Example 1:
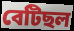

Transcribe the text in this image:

বেটিছল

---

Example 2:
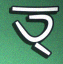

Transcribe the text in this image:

ত্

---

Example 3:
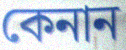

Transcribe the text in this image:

কেনান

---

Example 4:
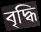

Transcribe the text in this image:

বৃদ্ধি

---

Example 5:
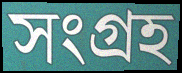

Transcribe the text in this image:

সংগ্রহ